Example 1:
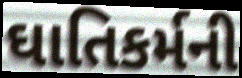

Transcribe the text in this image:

ઘાતિકર્મની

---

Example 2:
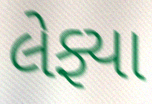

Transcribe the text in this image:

લેફ્યા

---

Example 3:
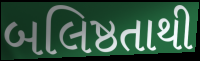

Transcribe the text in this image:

બલિષ્ઠતાથી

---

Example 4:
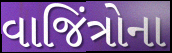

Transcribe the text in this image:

વાજિંત્રોના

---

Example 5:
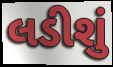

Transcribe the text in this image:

લડીશું